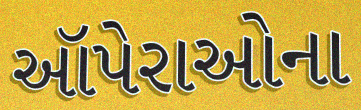
ઑપેરાઓના